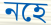
নহে